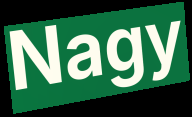
Nagy